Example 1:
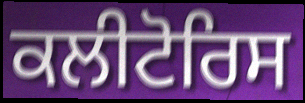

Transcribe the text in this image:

ਕਲੀਟੋਰਿਸ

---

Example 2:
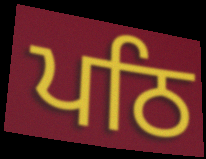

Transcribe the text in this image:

ਪਠਿ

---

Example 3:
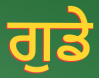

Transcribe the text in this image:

ਗੁਡੇ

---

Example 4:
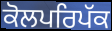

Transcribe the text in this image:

ਕੋਲਪਰਿਪੱਕ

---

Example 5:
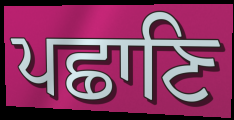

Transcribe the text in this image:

ਪਛਾਣਿ